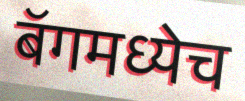
बॅगमध्येच